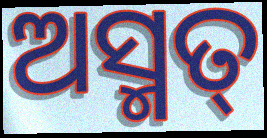
ଅସ୍ମତ୍